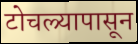
टोचल्यापासून